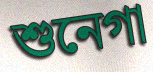
শুনেগা